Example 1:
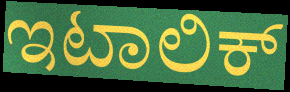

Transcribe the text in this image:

ಇಟಾಲಿಕ್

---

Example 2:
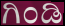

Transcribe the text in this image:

ಗಿಂಡಿ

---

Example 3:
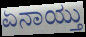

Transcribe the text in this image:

ಏನಾಯ್ತು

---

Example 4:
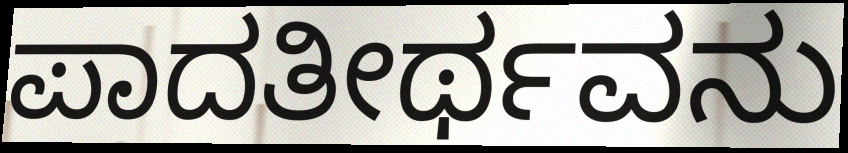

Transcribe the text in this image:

ಪಾದತೀರ್ಥವನು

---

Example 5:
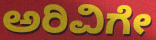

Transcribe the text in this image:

ಅರಿವಿಗೇ